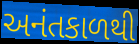
અનંતકાળથી